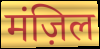
मंज़िल